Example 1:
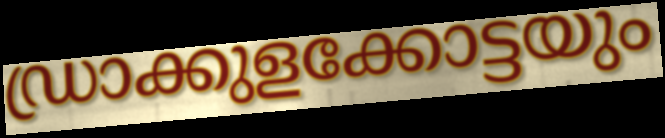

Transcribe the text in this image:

ഡ്രാക്കുളക്കോട്ടയും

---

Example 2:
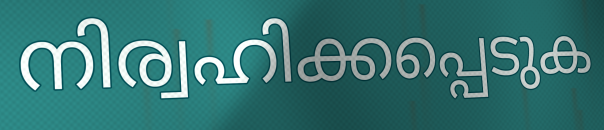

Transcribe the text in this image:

നിര്വഹിക്കപ്പെടുക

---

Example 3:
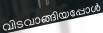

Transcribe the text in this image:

വിടവാങ്ങിയപ്പോൾ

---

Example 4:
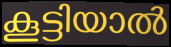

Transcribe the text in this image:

കൂട്ടിയാൽ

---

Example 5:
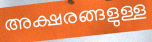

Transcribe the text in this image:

അക്ഷരങ്ങളുള്ള